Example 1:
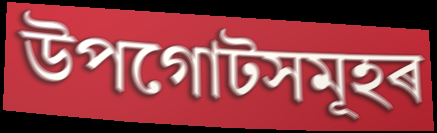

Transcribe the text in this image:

উপগোটসমূহৰ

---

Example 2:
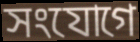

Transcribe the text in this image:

সংযোগে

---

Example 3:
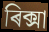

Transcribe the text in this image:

ৰিক্সা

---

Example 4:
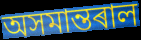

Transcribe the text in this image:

অসমান্তৰাল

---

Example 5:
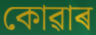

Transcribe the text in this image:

কোৱাৰ